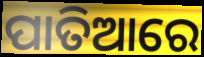
ପାତିଆରେ